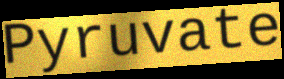
Pyruvate